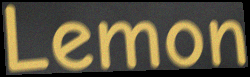
Lemon